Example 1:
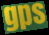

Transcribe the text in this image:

gps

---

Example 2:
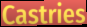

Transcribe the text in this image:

Castries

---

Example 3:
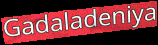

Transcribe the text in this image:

Gadaladeniya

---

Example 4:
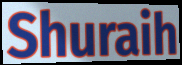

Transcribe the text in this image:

Shuraih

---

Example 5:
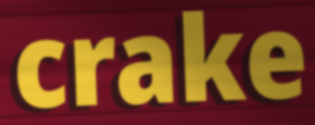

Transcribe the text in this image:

crake